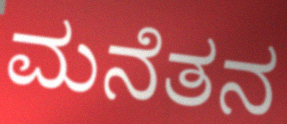
ಮನೆತನ